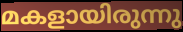
മകളായിരുന്നു